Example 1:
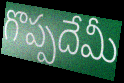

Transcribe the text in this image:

గొప్పదేమీ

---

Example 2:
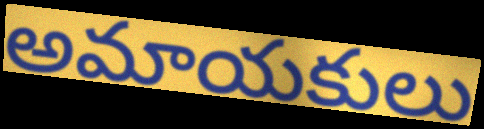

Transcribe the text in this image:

అమాయకులు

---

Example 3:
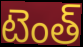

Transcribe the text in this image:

టెంత్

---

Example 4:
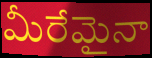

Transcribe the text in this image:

మీరేమైనా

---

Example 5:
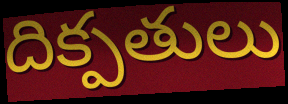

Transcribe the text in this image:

దిక్పతులు